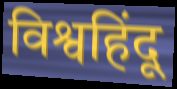
विश्वहिंदू